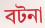
বটনা